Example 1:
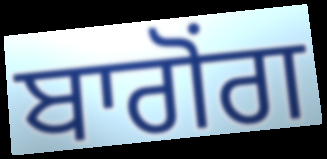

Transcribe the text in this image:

ਬਾਗੋਂਗ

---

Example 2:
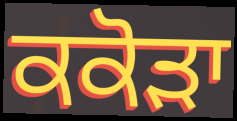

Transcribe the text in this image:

ਕਕੋੜਾ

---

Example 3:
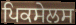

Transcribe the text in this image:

ਪਿਕਸੇਲਸ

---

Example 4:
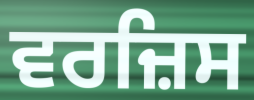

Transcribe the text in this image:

ਵਰਜ਼ਿਸ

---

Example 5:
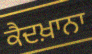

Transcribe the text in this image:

ਕੈਦਖ਼ਾਨਾ